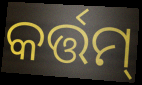
କର୍ତ୍ତମ୍